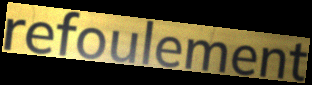
refoulement